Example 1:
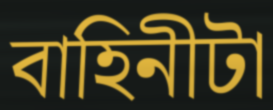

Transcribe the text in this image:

বাহিনীটা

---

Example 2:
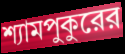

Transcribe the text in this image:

শ্যামপুকুরের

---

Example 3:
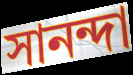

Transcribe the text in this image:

সানন্দা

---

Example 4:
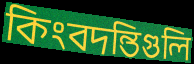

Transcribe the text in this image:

কিংবদন্তিগুলি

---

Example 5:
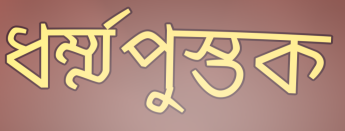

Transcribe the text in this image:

ধর্ম্মপুস্তক